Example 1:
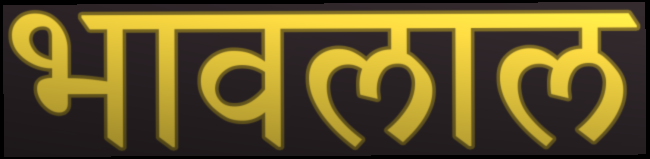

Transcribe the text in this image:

भावलाल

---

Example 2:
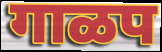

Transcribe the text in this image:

गाळप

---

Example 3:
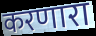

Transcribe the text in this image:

करणारा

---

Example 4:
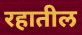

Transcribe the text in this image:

रहातील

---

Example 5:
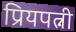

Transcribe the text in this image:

प्रियपत्नी